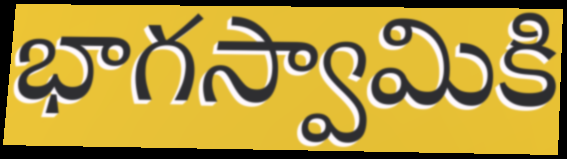
భాగస్వామికి